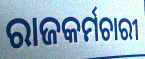
ରାଜକର୍ମଚାରୀ